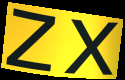
zx